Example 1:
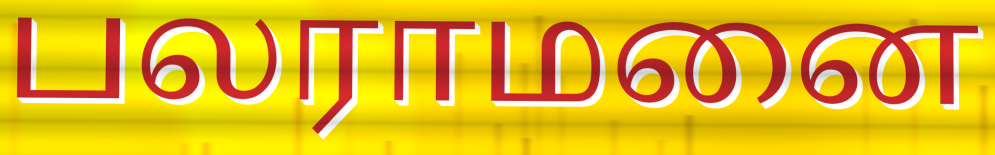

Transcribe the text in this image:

பலராமனை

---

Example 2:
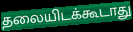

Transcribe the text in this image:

தலையிடக்கூடாது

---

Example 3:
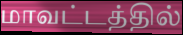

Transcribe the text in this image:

மாவட்டத்தில்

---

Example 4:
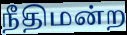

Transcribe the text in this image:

நீதிமன்ற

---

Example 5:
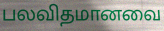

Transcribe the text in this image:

பலவிதமானவை